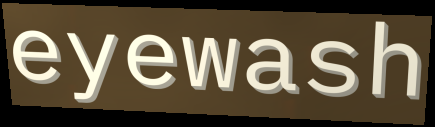
eyewash